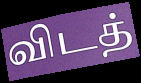
விடத்